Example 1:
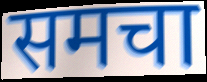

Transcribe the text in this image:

समचा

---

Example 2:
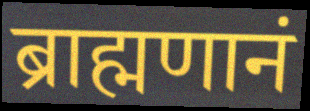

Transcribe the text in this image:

ब्राह्मणानं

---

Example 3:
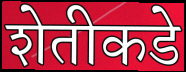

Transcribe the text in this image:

शेतीकडे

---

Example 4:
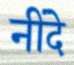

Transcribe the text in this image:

नींदे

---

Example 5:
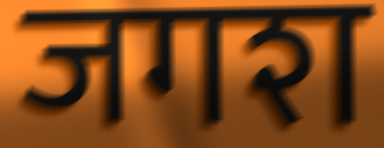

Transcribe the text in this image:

जगश